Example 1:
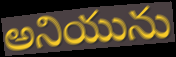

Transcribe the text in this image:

అనియును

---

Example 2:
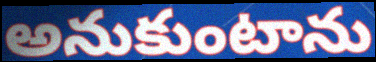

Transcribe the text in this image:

అనుకుంటాను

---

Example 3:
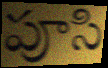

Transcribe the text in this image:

పూసి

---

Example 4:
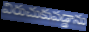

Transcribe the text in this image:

విరుచుకుపడ్డాను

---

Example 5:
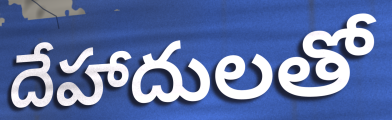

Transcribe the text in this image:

దేహాదులతో